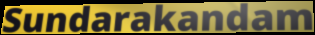
Sundarakandam